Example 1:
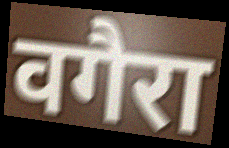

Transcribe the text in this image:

वगैरा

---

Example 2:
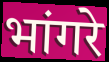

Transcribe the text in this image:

भांगरे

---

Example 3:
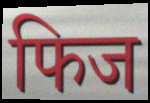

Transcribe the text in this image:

फिज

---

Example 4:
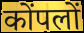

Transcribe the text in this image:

कोंपलों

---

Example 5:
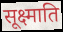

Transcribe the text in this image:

सूक्ष्माति